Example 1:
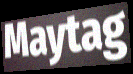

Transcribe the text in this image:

Maytag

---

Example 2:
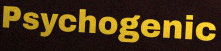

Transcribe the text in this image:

Psychogenic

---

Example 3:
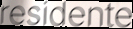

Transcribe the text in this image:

residente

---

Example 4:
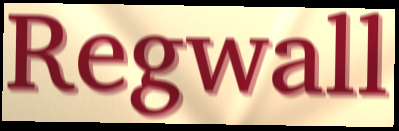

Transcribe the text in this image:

Regwall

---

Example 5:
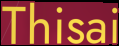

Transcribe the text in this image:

Thisai